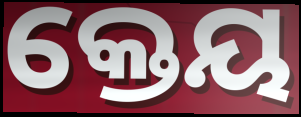
କ୍ତେୟ